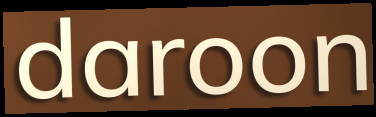
daroon